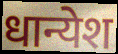
धान्येश